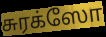
சுரக்ஸோ